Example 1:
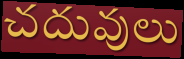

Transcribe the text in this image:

చదువులు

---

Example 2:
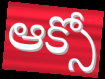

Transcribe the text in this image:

ఆక్సో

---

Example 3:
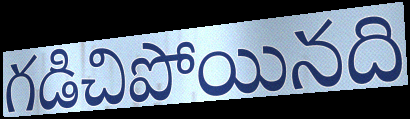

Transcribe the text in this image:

గడిచిపోయినది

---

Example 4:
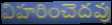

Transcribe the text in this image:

విహరించెదవు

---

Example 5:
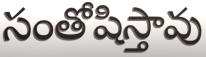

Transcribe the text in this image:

సంతోషిస్తావు